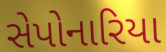
સેપોનારિયા